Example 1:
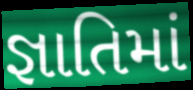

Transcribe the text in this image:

જ્ઞાતિમાં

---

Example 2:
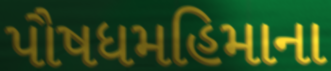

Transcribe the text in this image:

પૌષધમહિમાના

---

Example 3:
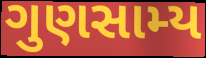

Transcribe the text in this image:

ગુણસામ્ય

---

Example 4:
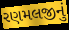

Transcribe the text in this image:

રણમલજીનું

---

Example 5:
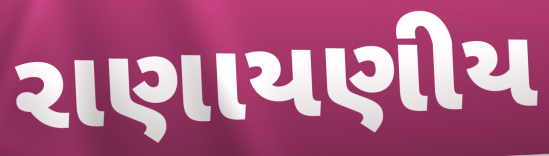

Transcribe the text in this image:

રાણાયણીય